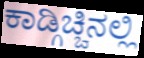
ಕಾಡ್ಗಿಚ್ಚಿನಲ್ಲಿ